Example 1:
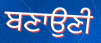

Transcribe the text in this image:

ਬਣਾਉਣੀ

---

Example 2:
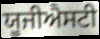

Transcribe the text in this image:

ਯੂਜੀਐਸਟੀ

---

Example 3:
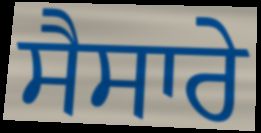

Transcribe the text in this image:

ਸੈਸਾਰੇ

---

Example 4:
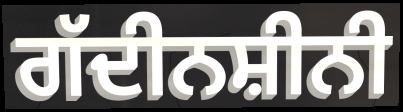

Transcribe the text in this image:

ਗੱਦੀਨਸ਼ੀਨੀ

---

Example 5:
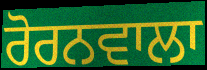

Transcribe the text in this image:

ਰੋਰਨਵਾਲਾ